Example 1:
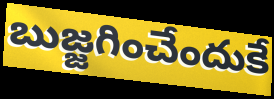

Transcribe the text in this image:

బుజ్జగించేందుకే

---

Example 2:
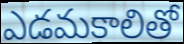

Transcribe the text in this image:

ఎడమకాలితో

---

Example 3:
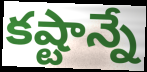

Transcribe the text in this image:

కష్టాన్నే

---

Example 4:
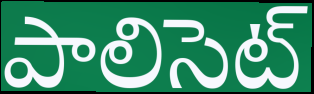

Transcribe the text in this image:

పాలిసెట్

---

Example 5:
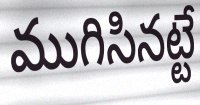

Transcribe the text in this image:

ముగిసినట్టే